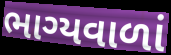
ભાગ્યવાળાં